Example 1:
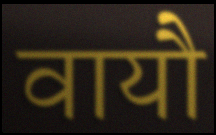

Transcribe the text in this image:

वायौ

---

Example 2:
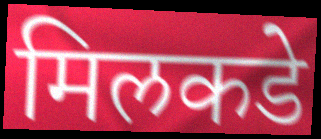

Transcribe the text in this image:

मिलकडे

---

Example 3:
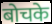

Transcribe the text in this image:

बोचके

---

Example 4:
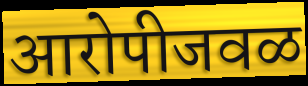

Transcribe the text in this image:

आरोपीजवळ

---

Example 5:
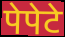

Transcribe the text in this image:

पेपेटे